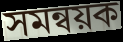
সমন্বয়ক